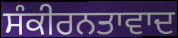
ਸੰਕੀਰਨਤਾਵਾਦ